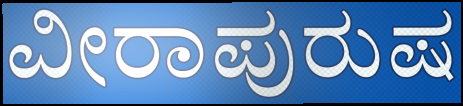
ವೀರಾಪುರುಷ